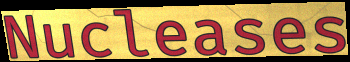
Nucleases